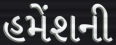
હમેંશની